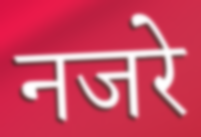
नजरे